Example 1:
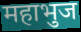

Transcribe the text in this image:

महाभुज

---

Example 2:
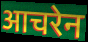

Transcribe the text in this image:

आचरेन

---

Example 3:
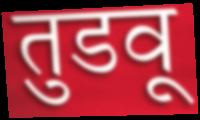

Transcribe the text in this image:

तुडवू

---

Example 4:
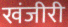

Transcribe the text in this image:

खंजीरी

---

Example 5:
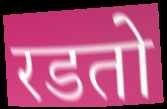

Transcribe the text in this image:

रडतो